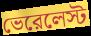
ভেরেলেস্ট